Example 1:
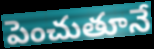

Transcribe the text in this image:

పెంచుతూనే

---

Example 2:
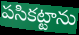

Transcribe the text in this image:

పసికట్టాను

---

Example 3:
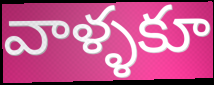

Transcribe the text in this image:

వాళ్ళకూ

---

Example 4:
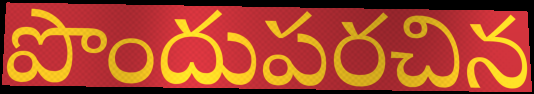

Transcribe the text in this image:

పొందుపరచిన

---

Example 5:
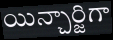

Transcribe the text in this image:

యిన్చార్జిగా